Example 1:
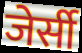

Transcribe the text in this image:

जेर्सी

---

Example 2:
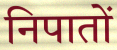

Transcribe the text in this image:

निपातों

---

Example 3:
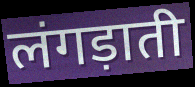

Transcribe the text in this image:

लंगड़ाती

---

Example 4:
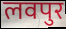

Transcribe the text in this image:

लवपुर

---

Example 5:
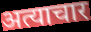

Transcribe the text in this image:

अत्‍याचार